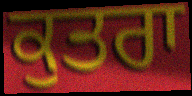
ਕੁਤਰਾ